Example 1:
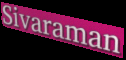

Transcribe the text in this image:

Sivaraman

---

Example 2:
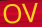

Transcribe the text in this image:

OV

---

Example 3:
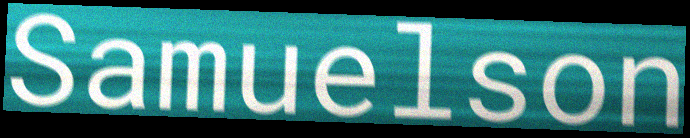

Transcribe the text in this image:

Samuelson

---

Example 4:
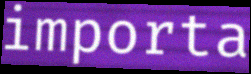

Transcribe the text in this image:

importa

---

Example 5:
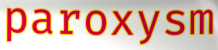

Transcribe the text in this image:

paroxysm